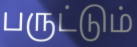
பருட்டும்